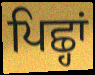
ਪਿਛ੍ਹਾਂ